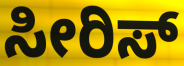
ಸೀರಿಸ್